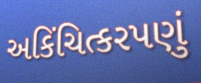
અકિંચિત્કરપણું